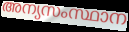
അന്യസംസ്ഥാന